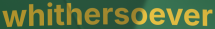
whithersoever